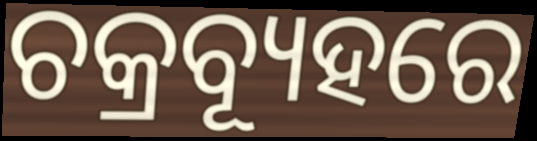
ଚକ୍ରବ୍ୟୂହରେ